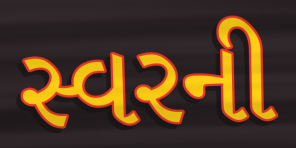
સ્વરની